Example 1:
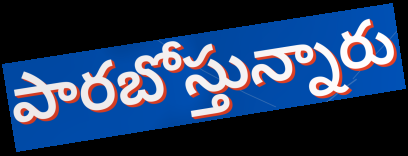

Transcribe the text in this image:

పారబోస్తున్నారు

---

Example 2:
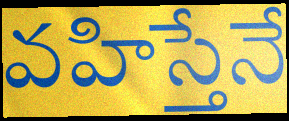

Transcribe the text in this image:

వహిస్తేనే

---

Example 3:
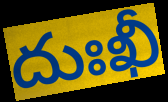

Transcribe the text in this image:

దుఃఖీ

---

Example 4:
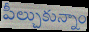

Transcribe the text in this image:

పీల్చుకున్నాం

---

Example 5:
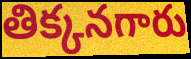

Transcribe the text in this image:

తిక్కనగారు